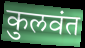
कुलवंत